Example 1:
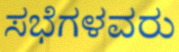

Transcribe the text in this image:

ಸಭೆಗಳವರು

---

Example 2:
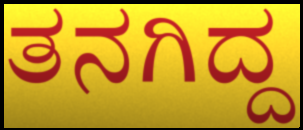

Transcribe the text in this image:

ತನಗಿದ್ದ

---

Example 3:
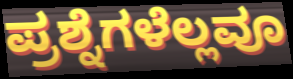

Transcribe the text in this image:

ಪ್ರಶ್ನೆಗಳೆಲ್ಲವೂ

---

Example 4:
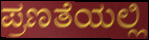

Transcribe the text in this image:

ಪ್ರಣತೆಯಲ್ಲಿ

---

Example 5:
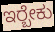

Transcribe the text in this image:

ಇರ‍್ಬೇಕು